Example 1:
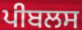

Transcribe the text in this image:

ਪੀਬਲਸ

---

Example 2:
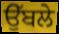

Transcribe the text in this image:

ਉੱਬਲੇ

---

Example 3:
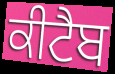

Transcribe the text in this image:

ਕੀਟੈਬ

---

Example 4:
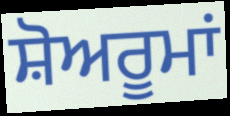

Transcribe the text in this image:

ਸ਼ੋਅਰੂਮਾਂ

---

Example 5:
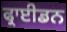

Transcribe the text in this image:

ਫ੍ਰਾਈਡਨ